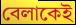
বেলাকেই